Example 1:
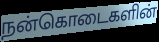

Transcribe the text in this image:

நன்கொடைகளின்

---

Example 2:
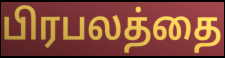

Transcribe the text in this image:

பிரபலத்தை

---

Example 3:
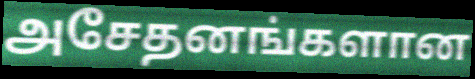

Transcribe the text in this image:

அசேதனங்களான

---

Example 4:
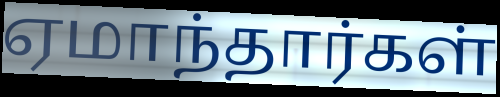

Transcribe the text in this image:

ஏமாந்தார்கள்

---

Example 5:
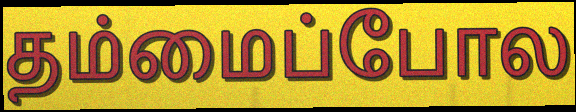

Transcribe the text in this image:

தம்மைப்போல